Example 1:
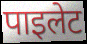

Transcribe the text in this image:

पाइलेट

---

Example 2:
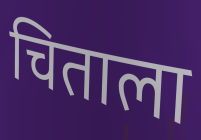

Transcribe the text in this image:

चिताला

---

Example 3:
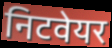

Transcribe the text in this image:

निटवेयर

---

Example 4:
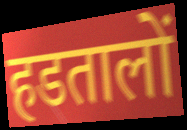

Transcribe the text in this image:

हडतालों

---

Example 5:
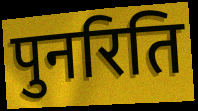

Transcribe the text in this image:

पुनरिति